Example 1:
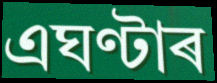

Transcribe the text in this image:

এঘণ্টাৰ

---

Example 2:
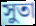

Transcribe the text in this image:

সুতা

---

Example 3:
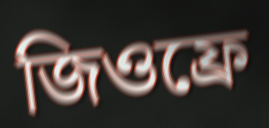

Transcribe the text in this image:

জিওফ্ৰে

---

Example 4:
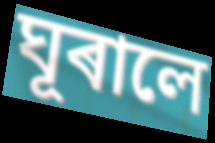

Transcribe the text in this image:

ঘূৰালে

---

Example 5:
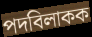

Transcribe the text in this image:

পদবিলাকক